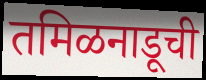
तमिळनाडूची